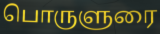
பொருளுரை